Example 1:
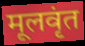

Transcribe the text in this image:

मूलवृंत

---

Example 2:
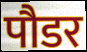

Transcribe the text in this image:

पौडर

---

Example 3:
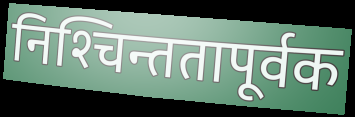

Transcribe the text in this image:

निश्चिन्ततापूर्वक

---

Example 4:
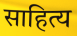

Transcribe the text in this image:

साहित्‍य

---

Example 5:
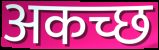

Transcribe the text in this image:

अकच्छ